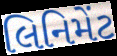
લિનિમેંટ